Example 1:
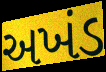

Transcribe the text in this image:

અખંડ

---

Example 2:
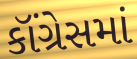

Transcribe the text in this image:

કૉંગ્રેસમાં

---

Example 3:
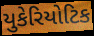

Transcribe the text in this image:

યુકેરિયોટિક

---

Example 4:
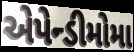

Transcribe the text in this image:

એપેન્ડીમોમા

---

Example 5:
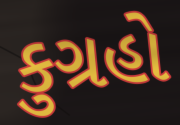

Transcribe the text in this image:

કુગ્રહો